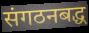
संगठनबद्ध